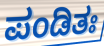
ಪಂಡಿತಃ